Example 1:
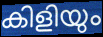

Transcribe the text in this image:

കിളിയും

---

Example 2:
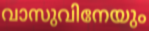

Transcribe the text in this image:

വാസുവിനേയും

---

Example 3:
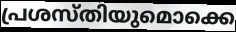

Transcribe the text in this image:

പ്രശസ്തിയുമൊക്കെ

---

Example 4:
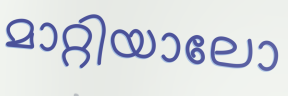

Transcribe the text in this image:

മാറ്റിയാലോ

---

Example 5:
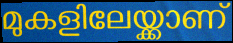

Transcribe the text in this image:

മുകളിലേയ്ക്കാണ്